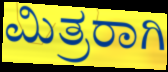
ಮಿತ್ರರಾಗಿ